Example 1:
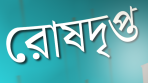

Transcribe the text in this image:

রোষদৃপ্ত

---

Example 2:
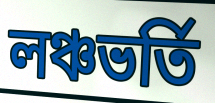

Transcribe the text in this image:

লঞ্চভর্তি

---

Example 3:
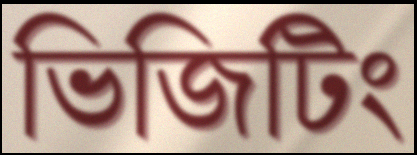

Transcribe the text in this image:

ভিজিটিং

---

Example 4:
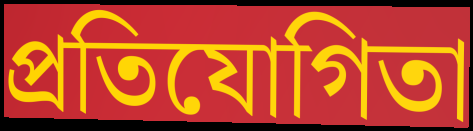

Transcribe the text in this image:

প্রতিযোগিতা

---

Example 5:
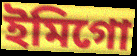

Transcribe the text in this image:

ইমিগো